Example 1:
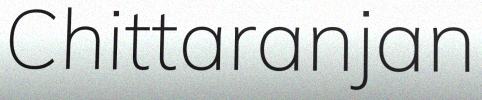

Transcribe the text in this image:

Chittaranjan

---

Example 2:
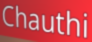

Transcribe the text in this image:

Chauthi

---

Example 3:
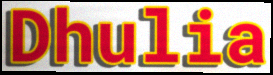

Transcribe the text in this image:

Dhulia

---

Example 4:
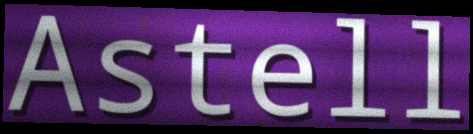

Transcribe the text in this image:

Astell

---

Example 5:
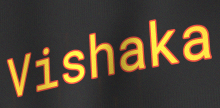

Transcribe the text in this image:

Vishaka